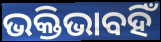
ଭକ୍ତିଭାବହିଁ